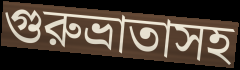
গুরুভ্রাতাসহ